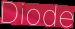
Diode